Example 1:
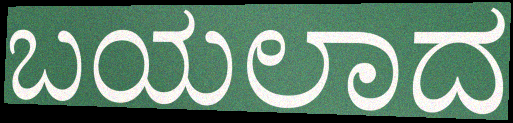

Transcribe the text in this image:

ಬಯಲಾದ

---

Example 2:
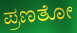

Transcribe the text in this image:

ಪ್ರಣತೋ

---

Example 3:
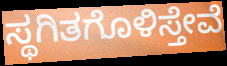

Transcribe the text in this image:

ಸ್ಥಗಿತಗೊಳಿಸ್ತೇವೆ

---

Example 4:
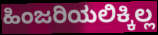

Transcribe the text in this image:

ಹಿಂಜರಿಯಲಿಕ್ಕಿಲ್ಲ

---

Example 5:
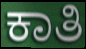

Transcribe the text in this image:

ಕಾತಿ